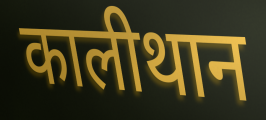
कालीथान